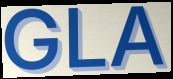
GLA